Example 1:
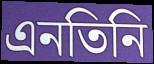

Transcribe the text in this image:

এনতিনি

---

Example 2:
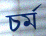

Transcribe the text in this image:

চর্ম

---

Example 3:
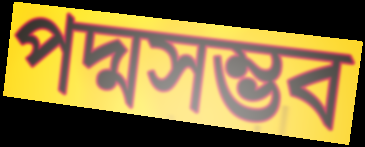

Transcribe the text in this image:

পদ্মসম্ভব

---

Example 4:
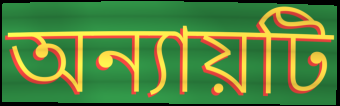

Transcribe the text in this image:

অন্যায়টি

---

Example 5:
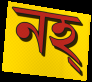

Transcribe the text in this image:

নহ্